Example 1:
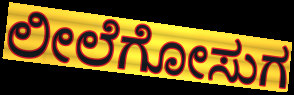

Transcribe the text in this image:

ಲೀಲೆಗೋಸುಗ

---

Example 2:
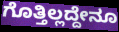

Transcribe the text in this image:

ಗೊತ್ತಿಲ್ಲದ್ದೇನೂ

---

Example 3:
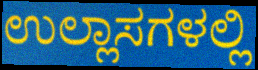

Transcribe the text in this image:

ಉಲ್ಲಾಸಗಳಲ್ಲಿ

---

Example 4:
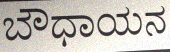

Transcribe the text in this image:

ಬೌಧಾಯನ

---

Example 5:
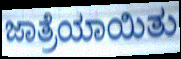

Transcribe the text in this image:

ಜಾತ್ರೆಯಾಯಿತು